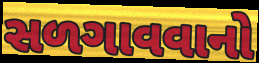
સળગાવવાનો